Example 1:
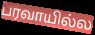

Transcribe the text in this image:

பரவாயில்ல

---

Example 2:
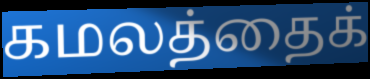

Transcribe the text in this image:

கமலத்தைக்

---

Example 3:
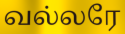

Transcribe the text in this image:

வல்லரே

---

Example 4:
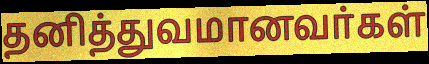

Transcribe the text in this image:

தனித்துவமானவர்கள்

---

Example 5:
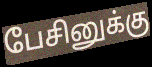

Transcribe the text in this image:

பேசினுக்கு